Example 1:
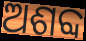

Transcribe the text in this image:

ଅଶବ୍ଦ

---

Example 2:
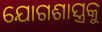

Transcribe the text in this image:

ଯୋଗଶାସ୍ତ୍ରକୁ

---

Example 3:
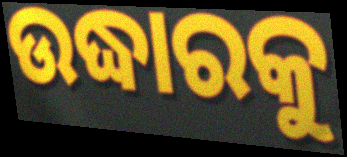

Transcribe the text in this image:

ଉଦ୍ଧାରକୁ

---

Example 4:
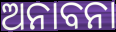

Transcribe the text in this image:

ଅନାବନା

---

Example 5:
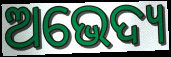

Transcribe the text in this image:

ଅଭେଦ୍ୟ